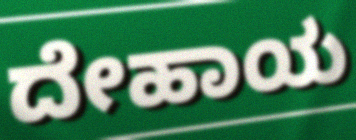
ದೇಹಾಯ